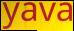
yava